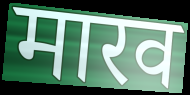
मारव